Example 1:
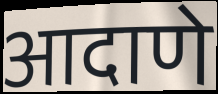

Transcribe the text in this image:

आदाणे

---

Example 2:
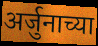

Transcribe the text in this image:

अर्जुनाच्या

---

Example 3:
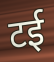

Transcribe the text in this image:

टई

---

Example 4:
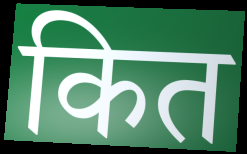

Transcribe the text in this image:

कित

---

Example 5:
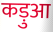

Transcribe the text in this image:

कड़ुआ